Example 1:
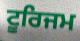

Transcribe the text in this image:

ਟੂਰਿਜਮ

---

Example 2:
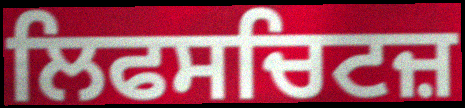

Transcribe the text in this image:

ਲਿਫਸਚਿਟਜ਼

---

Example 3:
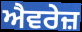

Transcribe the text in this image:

ਐਵਰੇਜ਼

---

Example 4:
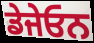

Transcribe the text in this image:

ਡੇਜੇਓਨ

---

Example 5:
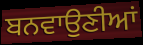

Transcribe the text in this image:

ਬਨਵਾਉਣੀਆਂ